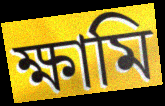
ক্ষামি